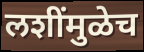
लशींमुळेच